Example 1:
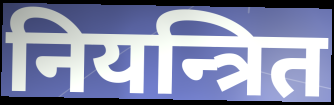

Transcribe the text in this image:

नियन्त्रित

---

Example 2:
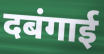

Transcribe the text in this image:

दबंगाई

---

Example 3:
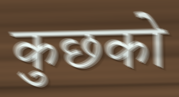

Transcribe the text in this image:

कुछको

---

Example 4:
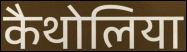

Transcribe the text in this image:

कैथोलिया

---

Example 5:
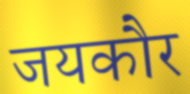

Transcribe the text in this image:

जयकौर